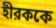
হীরককে